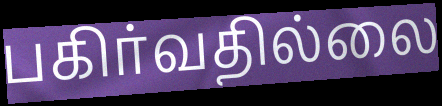
பகிர்வதில்லை